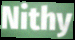
Nithy